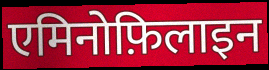
एमिनोफ़िलाइन